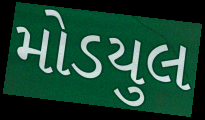
મોડયુલ